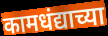
कामधंद्याच्या